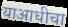
याआधीचा